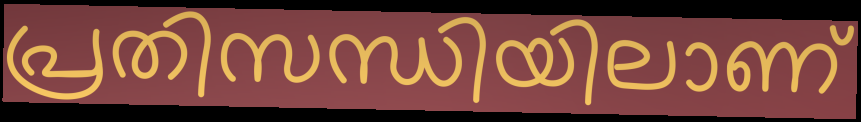
പ്രതിസന്ധിയിലാണ്